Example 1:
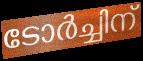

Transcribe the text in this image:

ടോർച്ചിന്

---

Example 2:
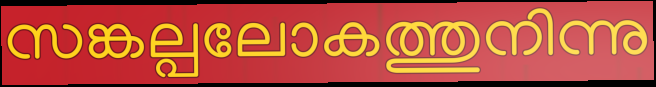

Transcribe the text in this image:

സങ്കല്പലോകത്തുനിന്നു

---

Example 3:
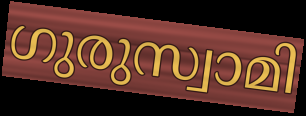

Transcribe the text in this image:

ഗുരുസ്വാമി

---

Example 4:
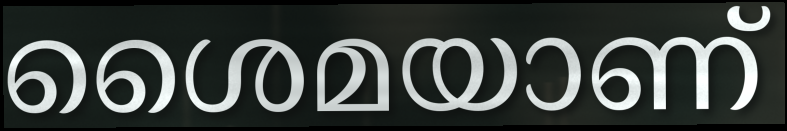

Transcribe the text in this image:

ശൈമയാണ്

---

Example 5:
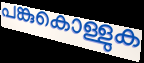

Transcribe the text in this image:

പങ്കുകൊള്ളുക